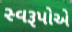
સ્વરૂપોએ